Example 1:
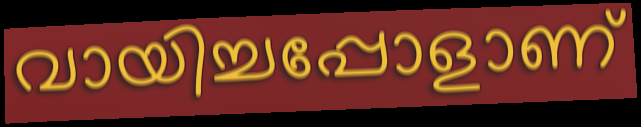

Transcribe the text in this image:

വായിച്ചപ്പോളാണ്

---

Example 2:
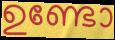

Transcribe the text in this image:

ഉണ്ടോ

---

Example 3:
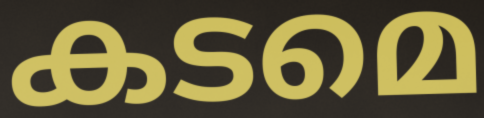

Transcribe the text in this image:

കടമെ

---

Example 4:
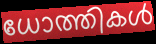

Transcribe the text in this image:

ധോത്തികൾ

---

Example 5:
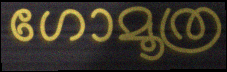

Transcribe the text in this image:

ഗോമൂത്ര